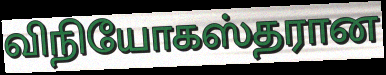
விநியோகஸ்தரான